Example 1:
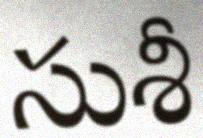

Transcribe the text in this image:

సుశీ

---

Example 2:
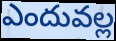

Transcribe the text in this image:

ఎందువల్ల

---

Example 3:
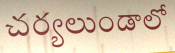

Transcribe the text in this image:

చర్యలుండాలో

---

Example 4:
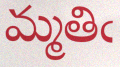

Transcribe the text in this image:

మ్మతిఁ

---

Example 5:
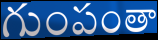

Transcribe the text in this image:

గుంపంతా